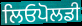
ਲਿਓਪੋਲਡੀ